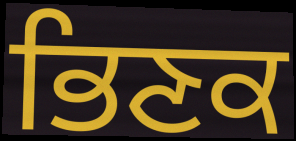
ਭਿਣਕ